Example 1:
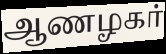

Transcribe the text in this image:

ஆணழகர்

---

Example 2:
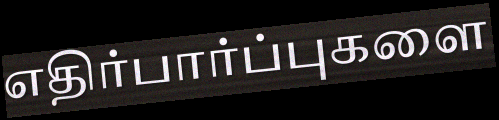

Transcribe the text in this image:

எதிர்பார்ப்புகளை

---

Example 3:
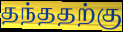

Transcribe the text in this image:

தந்ததற்கு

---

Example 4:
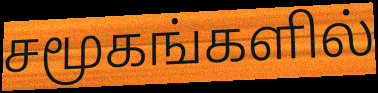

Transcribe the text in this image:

சமூகங்களில்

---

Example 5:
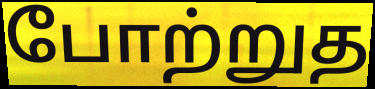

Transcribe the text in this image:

போற்றுத